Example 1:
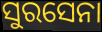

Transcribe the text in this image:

ସୁରସେନା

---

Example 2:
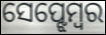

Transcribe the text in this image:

ସେପ୍ଝେମ୍ବର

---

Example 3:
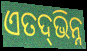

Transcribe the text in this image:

ଏତଦ୍‌ଭିନ୍ନ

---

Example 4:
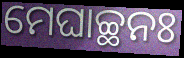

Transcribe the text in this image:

ମେଘାଚ୍ଛନଃ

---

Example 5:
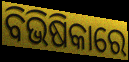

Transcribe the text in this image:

ବିଭିଷିକାରେ